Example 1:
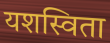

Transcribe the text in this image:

यशस्विता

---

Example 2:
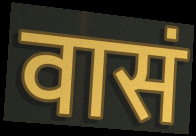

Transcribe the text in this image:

वासं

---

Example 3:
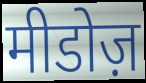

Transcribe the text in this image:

मीडोज़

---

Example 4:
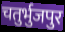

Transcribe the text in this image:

चतुर्भुजपुर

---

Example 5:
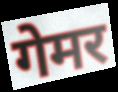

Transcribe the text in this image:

गेमर